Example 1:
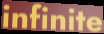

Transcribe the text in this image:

infinite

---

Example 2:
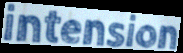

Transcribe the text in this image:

intension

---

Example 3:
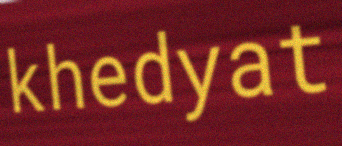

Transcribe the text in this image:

khedyat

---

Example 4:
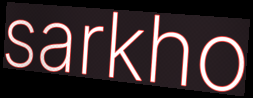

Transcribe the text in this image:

sarkho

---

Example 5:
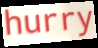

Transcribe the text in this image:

hurry